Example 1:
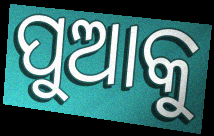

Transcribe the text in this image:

ପୁଆକୁ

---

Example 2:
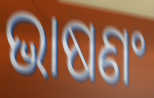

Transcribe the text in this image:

ଭାଷଣଂ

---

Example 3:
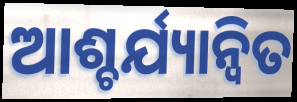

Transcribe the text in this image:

ଆଶ୍ଚର୍ଯ୍ୟାନ୍ୱିତ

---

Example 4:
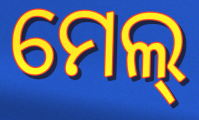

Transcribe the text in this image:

ମେଲ୍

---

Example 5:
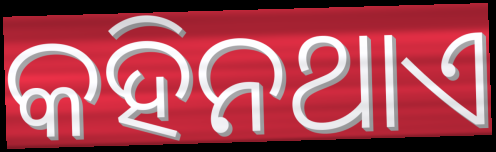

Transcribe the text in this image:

କହିନଥାଏ